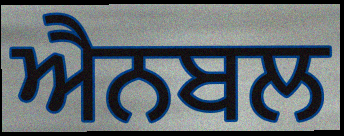
ਐਨਬਲ